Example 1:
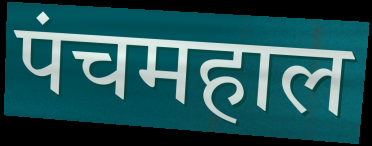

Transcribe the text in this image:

पंचमहाल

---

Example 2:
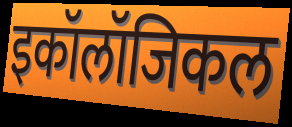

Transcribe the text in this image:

इकॉलॉजिकल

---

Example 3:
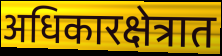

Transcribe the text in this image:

अधिकारक्षेत्रात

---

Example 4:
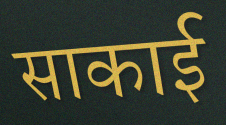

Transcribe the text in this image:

साकाई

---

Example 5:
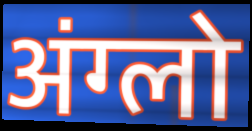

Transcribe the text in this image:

अंग्लो